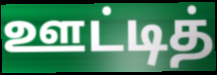
ஊட்டித்